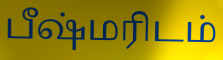
பீஷ்மரிடம்